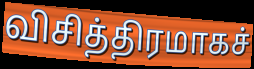
விசித்திரமாகச்